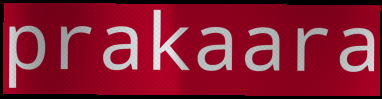
prakaara